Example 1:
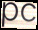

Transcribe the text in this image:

pc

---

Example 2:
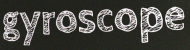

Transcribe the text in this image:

gyroscope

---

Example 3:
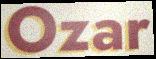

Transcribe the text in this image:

Ozar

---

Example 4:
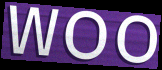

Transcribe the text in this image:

woo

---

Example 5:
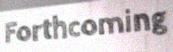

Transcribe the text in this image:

Forthcoming